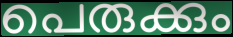
പെരുക്കും